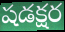
షడక్షర